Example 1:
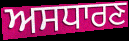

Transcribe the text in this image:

ਅਸਧਾਰਣ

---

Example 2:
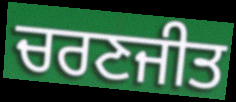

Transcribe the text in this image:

ਚਰਣਜੀਤ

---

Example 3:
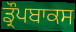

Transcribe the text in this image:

ਡ੍ਰੌਪਬਾਕਸ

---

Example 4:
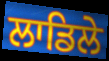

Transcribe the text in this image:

ਲਾਡਿਲੇ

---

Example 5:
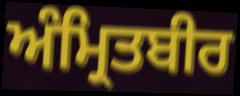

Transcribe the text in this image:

ਅੰਮ੍ਰਿਤਬੀਰ